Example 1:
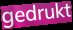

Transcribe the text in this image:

gedrukt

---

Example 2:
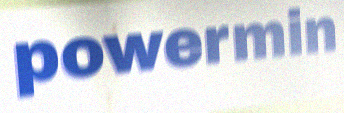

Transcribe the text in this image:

powermin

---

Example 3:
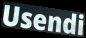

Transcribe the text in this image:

Usendi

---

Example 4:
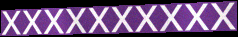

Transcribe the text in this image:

xxxxxxxxxx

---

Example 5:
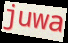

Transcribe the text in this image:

juwa